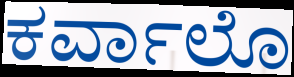
ಕರ್ವಾಲೊ